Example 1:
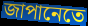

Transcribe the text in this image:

জাপানেতে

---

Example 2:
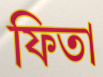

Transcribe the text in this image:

ফিতা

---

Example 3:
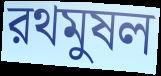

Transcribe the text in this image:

রথমুষল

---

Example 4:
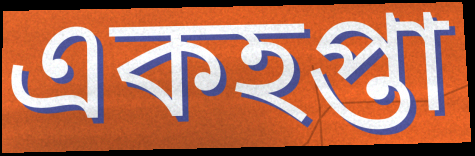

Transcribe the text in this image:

একহপ্তা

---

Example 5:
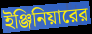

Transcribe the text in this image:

ইঞ্জিনিয়ারের